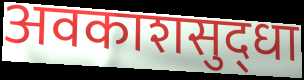
अवकाशसुद्धा